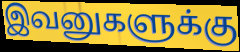
இவனுகளுக்கு